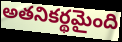
అతనికర్థమైంది